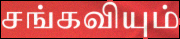
சங்கவியும்